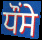
ਧੌਂਸੇ